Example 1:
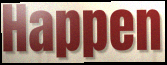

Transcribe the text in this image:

Happen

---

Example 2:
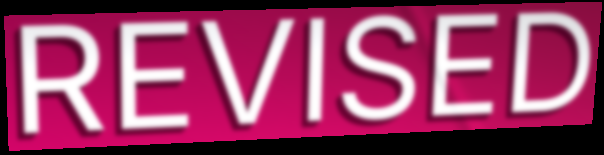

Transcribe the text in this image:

REVISED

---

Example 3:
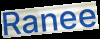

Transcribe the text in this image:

Ranee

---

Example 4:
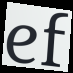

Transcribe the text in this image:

ef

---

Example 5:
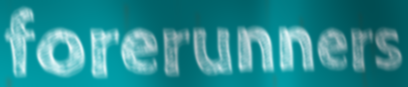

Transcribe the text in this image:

forerunners